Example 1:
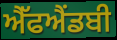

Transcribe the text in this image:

ਐੱਫਐਂਡਬੀ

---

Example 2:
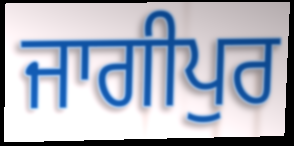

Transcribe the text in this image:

ਜਾਗੀਪੁਰ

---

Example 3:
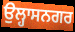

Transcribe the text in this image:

ਉਲ੍ਹਾਸਨਗਰ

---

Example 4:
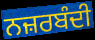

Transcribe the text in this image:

ਨਜ਼ਰਬੰਦੀ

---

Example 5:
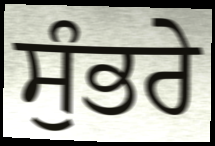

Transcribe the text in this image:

ਸੁੰਭਰੇ